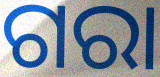
ଗରା